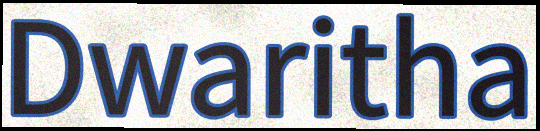
Dwaritha